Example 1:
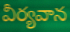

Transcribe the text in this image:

వీర్యవాన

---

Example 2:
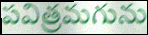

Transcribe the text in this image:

పవిత్రమగును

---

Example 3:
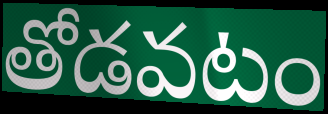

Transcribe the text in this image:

తోడవటం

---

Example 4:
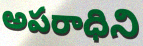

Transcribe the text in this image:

అపరాధిని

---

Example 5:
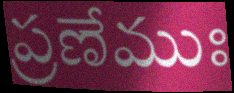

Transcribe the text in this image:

ప్రణేముః